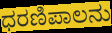
ಧರಣಿಪಾಲನು